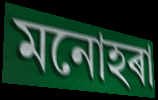
মনোহৰা